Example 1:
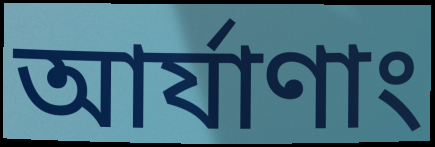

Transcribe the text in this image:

আর্যাণাং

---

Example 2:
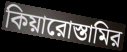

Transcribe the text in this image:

কিয়ারোস্তামির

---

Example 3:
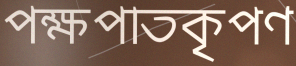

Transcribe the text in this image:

পক্ষপাতকৃপণ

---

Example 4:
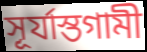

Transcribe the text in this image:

সূর্যাস্তগামী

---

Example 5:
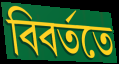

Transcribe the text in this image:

বিবর্ততে